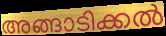
അങ്ങാടിക്കൽ